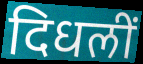
दिधलीं